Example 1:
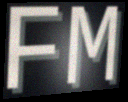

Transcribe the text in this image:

FM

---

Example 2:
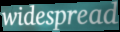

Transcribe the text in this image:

widespread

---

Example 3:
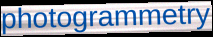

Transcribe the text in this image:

photogrammetry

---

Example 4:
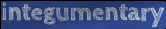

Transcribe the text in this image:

integumentary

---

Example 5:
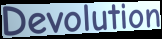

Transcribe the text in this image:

Devolution